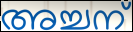
അച്ചന്